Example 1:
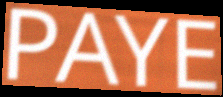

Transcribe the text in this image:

PAYE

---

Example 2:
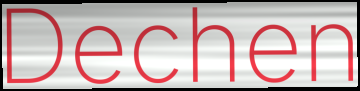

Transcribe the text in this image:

Dechen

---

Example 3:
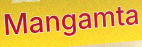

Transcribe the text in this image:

Mangamta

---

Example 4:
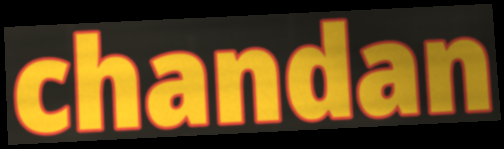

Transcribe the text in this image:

chandan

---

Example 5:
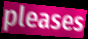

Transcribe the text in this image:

pleases